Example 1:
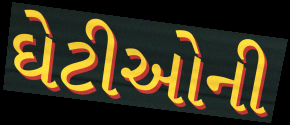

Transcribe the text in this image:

ઘેટીઓની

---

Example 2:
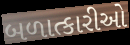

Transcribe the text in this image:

બળાત્કારીઓ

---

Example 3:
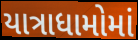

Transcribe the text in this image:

યાત્રાધામોમાં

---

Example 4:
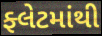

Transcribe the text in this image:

ફ્લેટમાંથી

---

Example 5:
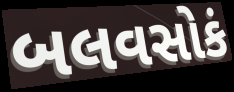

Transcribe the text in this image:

બલવસોકં